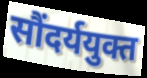
सौंदर्ययुक्त